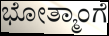
ಭೋತ್ಮಾಂಗೆ